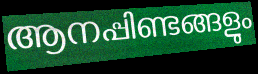
ആനപ്പിണ്ടങ്ങളും